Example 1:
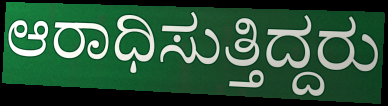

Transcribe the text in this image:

ಆರಾಧಿಸುತ್ತಿದ್ದರು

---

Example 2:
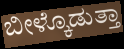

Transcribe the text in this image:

ಬೀಳ್ಕೊಡುತ್ತಾ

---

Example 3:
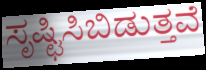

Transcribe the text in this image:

ಸೃಷ್ಟಿಸಿಬಿಡುತ್ತವೆ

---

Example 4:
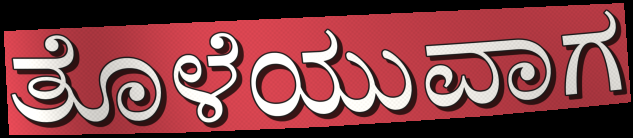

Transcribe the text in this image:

ತೊಳೆಯುವಾಗ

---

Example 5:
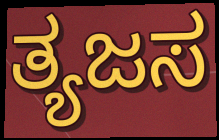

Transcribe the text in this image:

ತ್ಯಜಸ